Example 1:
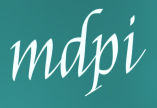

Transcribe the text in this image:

mdpi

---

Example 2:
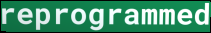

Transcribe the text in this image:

reprogrammed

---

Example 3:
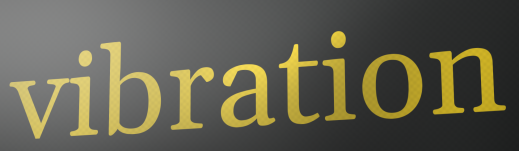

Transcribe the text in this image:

vibration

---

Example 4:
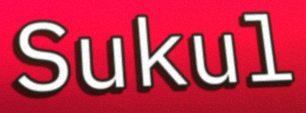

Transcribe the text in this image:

Sukul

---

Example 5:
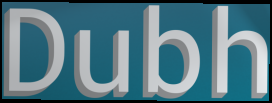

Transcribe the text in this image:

Dubh